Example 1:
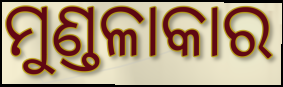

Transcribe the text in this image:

ମୁଣ୍ଡଳାକାର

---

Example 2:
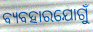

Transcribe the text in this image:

ବ୍ୟବହାରଯୋଗୁଁ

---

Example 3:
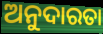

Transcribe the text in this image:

ଅନୁଦାରତା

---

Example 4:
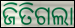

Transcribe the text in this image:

ଜିତିଗଲା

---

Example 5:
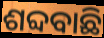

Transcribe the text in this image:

ଶବ୍ଦବାଛି